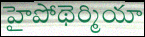
హైపోథెర్మియా